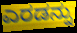
ಎರಡನ್ನು